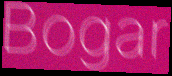
Bogar